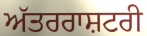
ਅੱਤਰਰਾਸ਼ਟਰੀ